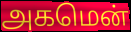
அகமென்